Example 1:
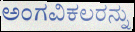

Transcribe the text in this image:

ಅಂಗವಿಕಲರನ್ನು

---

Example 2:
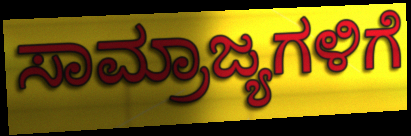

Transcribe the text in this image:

ಸಾಮ್ರಾಜ್ಯಗಳಿಗೆ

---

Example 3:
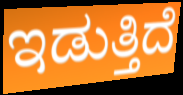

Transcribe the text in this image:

ಇಡುತ್ತಿದೆ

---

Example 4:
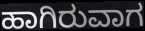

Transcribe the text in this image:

ಹಾಗಿರುವಾಗ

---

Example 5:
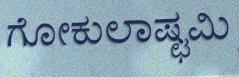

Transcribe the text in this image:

ಗೋಕುಲಾಷ್ಟಮಿ